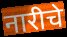
नारीचे